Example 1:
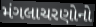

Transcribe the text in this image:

મંગલાચરણોનો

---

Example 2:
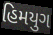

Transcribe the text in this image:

હિમયુગ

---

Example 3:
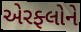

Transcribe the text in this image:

એરફ્લોને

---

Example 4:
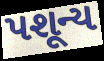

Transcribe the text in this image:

પશૂન્ય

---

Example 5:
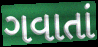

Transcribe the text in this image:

ગવાતાં